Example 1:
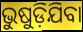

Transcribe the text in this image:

ଭୁଷୁଡ଼ିଯିବା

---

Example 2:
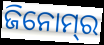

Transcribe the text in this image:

ଜିନୋମ୍‌ର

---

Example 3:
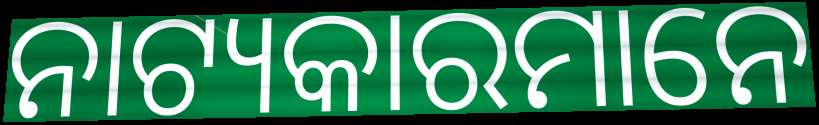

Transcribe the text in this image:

ନାଟ୍ୟକାରମାନେ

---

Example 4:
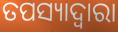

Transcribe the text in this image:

ତପସ୍ୟାଦ୍ୱାରା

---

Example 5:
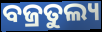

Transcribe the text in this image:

ବଜ୍ରତୁଲ୍ୟ